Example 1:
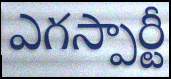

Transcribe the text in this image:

ఎగస్పార్టీ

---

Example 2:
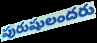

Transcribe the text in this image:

పురుషులందరు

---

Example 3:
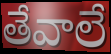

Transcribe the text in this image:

తేవాలే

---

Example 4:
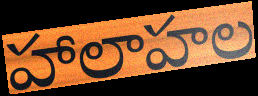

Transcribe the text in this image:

హాలాహల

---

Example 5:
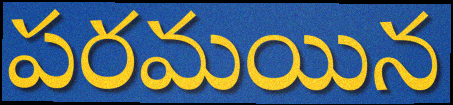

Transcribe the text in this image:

పరమయిన